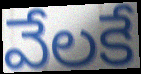
వేలకే